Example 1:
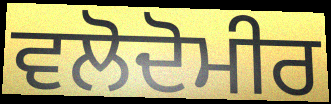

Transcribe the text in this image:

ਵਲੋਦੋਮੀਰ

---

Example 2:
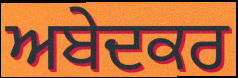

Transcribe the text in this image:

ਅਬੇਦਕਰ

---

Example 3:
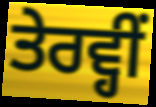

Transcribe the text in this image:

ਤੇਰਵ੍ਹੀਂ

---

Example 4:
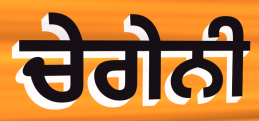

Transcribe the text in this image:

ਚੇਗੇਨੀ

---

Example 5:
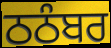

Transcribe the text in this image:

ਠਠੰਬਰ